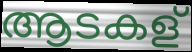
ആടകള്